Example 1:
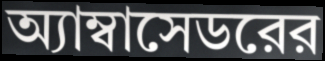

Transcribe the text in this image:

অ্যাম্বাসেডরের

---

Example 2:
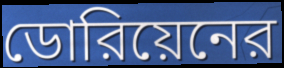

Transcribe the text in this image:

ডোরিয়েনের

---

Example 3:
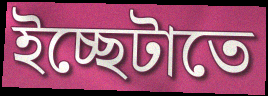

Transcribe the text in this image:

ইচ্ছেটাতে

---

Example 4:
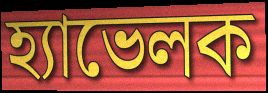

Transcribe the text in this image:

হ্যাভেলক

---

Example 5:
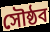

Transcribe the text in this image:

সৌষ্ঠব